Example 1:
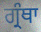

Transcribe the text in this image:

ਗ੍ਰੰਥਾ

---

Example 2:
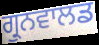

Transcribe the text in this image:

ਗ੍ਰੁਨਵਾਲਡ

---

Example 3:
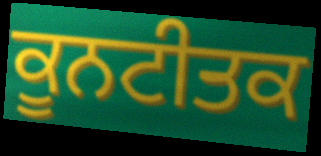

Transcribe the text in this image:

ਕੂਨਟੀਤਕ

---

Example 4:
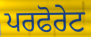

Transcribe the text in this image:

ਪਰਫੋਰੇਟ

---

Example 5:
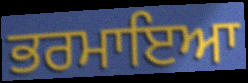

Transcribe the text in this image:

ਭਰਮਾਇਆ